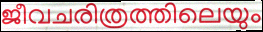
ജീവചരിത്രത്തിലെയും